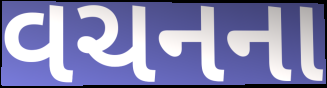
વચનના